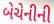
બેચેનીની